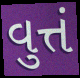
વુત્તં